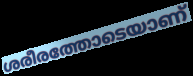
ശരീരത്തോടെയാണ്